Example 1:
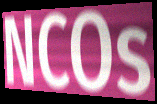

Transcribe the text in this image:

NCOs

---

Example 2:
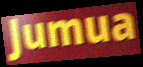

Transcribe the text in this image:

Jumua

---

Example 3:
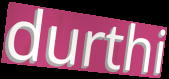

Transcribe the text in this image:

durthi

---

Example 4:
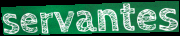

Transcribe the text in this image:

servantes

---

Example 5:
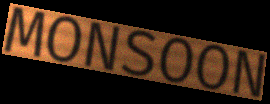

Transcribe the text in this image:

MONSOON